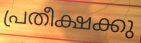
പ്രതീക്ഷക്കു